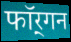
फॉर्गन